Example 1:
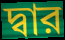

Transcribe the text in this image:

দ্বার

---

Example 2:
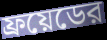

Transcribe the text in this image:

ফ্রয়েডের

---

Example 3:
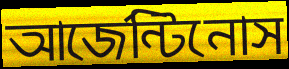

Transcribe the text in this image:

আর্জেন্টিনোস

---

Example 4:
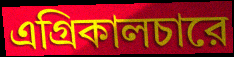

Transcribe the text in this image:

এগ্রিকালচারে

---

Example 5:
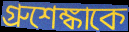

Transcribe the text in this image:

গ্রুশেঙ্কাকে